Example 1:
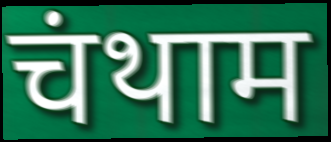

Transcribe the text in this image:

चंथाम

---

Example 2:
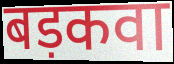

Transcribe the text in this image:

बड़कवा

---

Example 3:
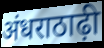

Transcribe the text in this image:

अंधराठाढ़ी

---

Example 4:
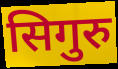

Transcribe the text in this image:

सिगुरु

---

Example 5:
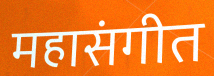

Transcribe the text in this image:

महासंगीत